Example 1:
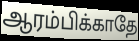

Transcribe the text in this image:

ஆரம்பிக்காதே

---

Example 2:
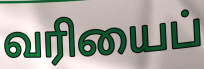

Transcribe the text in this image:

வரியைப்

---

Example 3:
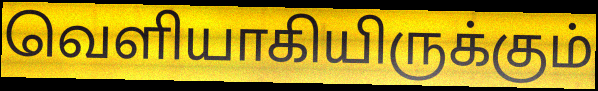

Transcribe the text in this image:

வெளியாகியிருக்கும்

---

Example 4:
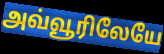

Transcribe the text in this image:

அவ்வூரிலேயே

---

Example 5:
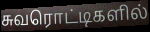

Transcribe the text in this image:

சுவரொட்டிகளில்